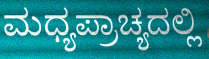
ಮಧ್ಯಪ್ರಾಚ್ಯದಲ್ಲಿ